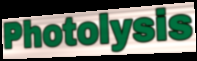
Photolysis